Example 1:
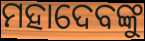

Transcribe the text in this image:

ମହାଦେବଙ୍କୁ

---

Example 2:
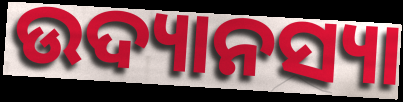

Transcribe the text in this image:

ଉଦ୍ୟାନସ୍ୟା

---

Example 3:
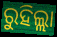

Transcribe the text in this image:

ରୁହିଲ୍ଲା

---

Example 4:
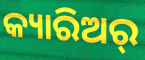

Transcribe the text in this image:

କ୍ୟାରିଅର୍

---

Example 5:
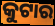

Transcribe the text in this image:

କୁଟାର